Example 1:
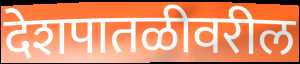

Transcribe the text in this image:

देशपातळीवरील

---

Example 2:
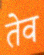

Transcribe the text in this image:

तेव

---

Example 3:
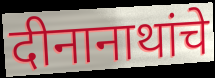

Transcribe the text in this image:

दीनानाथांचे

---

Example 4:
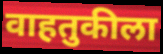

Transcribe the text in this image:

वाहतुकीला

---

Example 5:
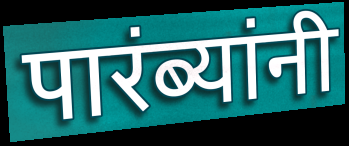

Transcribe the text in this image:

पारंब्यांनी